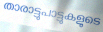
താരാട്ടുപാട്ടുകളുടെ